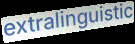
extralinguistic